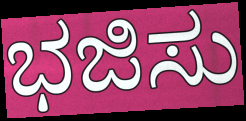
ಭಜಿಸು